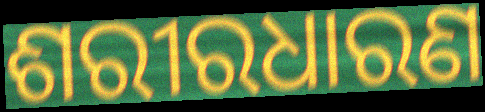
ଶରୀରଧାରଣ